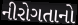
નીરોગતાનો